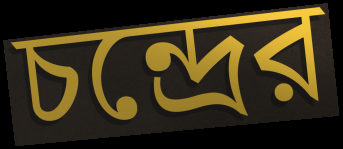
চন্দ্রের